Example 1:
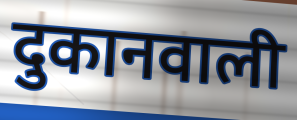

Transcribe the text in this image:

दुकानवाली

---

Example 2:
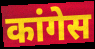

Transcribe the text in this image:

कांगेस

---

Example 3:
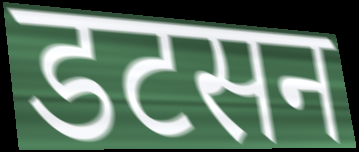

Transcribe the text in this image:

डटसन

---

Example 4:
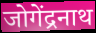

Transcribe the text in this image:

जोगेंद्रनाथ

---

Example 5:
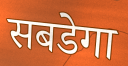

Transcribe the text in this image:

सबडेगा